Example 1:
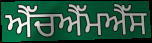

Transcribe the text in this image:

ਐੱਚਐੱਮਐੱਸ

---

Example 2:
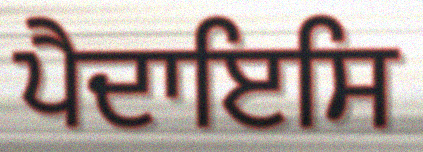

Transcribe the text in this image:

ਪੈਦਾਇਸਿ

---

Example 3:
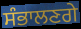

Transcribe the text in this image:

ਸੰਭਾਲਣਗੇ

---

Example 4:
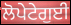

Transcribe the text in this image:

ਲੋਪੇਟੇਗੁਈ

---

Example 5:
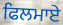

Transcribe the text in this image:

ਫਿਲਮਾਏ